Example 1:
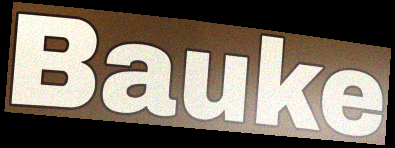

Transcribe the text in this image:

Bauke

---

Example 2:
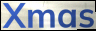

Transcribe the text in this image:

Xmas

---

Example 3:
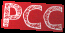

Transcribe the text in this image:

PCC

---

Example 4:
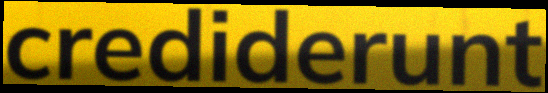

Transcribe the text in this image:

crediderunt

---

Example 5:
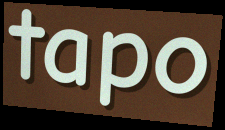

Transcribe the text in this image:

tapo